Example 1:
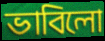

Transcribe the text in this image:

ভাবিলো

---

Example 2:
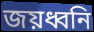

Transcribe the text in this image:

জয়ধ্বনি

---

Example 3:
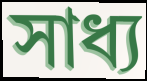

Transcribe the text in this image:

সাধ্য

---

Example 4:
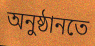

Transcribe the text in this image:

অনুষ্ঠানতে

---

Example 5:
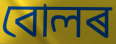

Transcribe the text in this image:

বোলৰ